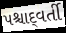
પશ્ચાદ્‌વર્તી